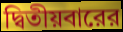
দ্বিতীয়বারের